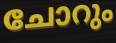
ചോറും